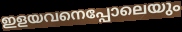
ഇളയവനെപ്പോലെയും